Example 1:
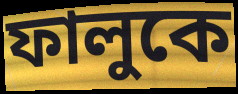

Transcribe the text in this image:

ফালুকে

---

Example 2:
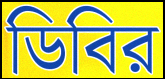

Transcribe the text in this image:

ডিবির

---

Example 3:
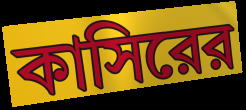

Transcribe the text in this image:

কাসিরের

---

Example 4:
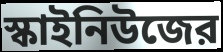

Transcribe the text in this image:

স্কাইনিউজের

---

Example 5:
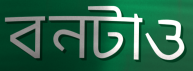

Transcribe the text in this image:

বনটাও